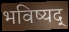
भविष्यद्